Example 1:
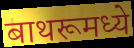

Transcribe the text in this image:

बाथरूमध्ये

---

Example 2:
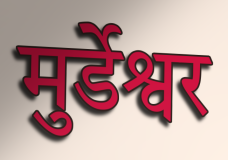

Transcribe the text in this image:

मुर्डेश्वर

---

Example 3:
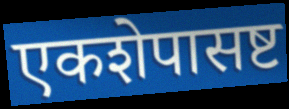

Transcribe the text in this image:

एकशेपासष्ट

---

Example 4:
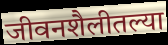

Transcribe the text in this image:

जीवनशैलीतल्या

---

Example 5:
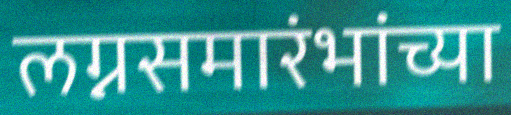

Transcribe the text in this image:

लग्नसमारंभांच्या